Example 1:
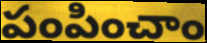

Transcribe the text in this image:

పంపించాం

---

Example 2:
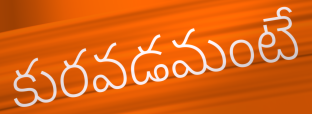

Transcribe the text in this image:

కురవడమంటే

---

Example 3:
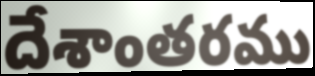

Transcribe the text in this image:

దేశాంతరము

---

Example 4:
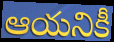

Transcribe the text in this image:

ఆయనికీ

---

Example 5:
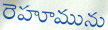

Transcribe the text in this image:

రెహూమును